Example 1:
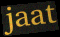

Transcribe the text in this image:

jaat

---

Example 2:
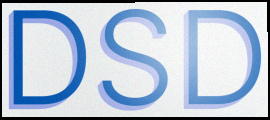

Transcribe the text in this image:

DSD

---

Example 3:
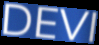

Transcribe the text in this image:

DEVI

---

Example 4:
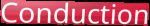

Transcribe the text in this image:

Conduction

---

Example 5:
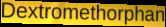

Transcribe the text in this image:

Dextromethorphan